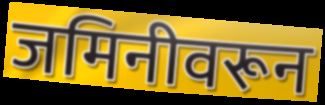
जमिनीवरून